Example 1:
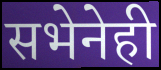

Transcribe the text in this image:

सभेनेही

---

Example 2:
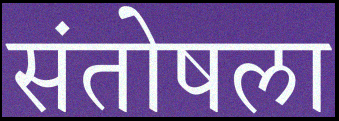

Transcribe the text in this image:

संतोषला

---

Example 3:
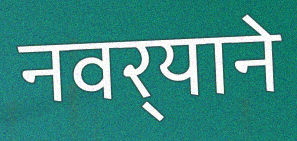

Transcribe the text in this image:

नवर्‍याने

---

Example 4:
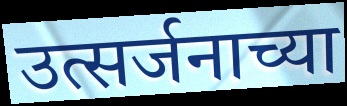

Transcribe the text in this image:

उत्सर्जनाच्या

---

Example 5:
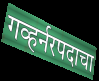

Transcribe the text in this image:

गव्हर्नरपदाचा